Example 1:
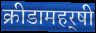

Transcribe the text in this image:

क्रीडामहर्षी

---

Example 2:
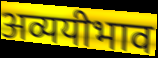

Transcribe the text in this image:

अव्ययीभाव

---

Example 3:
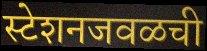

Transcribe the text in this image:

स्टेशनजवळची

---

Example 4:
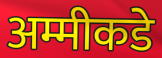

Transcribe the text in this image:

अम्मीकडे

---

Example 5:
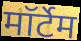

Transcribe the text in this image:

मॉर्टेम